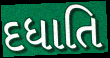
દધાતિ